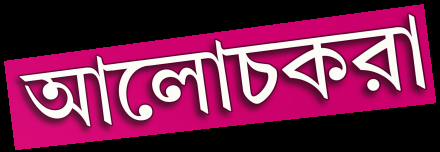
আলোচকরা